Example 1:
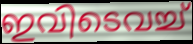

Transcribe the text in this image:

ഇവിടെവച്ച്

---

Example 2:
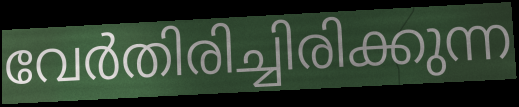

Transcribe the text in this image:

വേർതിരിച്ചിരിക്കുന്ന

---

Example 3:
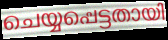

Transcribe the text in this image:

ചെയ്യപ്പെട്ടതായി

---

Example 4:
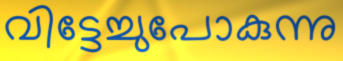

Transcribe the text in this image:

വിട്ടേച്ചുപോകുന്നു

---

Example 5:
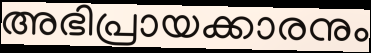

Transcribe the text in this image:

അഭിപ്രായക്കാരനും